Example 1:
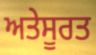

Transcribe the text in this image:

ਅਤੇਸੂਰਤ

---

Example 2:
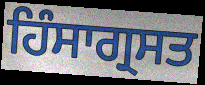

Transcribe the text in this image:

ਹਿੰਸਾਗ੍ਰਸਤ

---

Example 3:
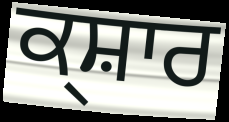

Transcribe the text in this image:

ਕ੍ਸ਼ਾਰ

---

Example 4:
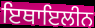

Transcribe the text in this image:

ਇਥਾਇਲੀਨ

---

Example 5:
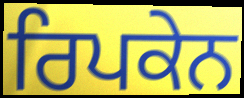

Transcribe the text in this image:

ਰਿਪਕੇਨ